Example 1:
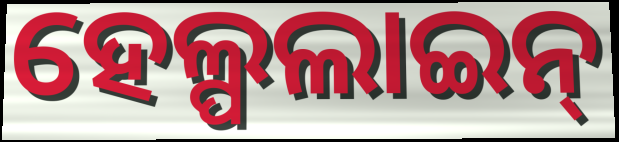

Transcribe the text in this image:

ହେଲ୍ପଲାଇନ୍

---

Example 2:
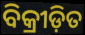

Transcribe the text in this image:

ବିକ୍ରୀଡ଼ିତ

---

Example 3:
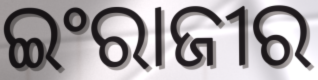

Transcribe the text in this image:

ଇଂରାଜୀର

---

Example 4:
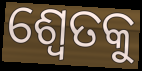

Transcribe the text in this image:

ଶ୍ଵେତକୁ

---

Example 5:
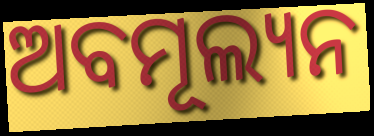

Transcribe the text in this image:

ଅବମୂଲ୍ୟନ